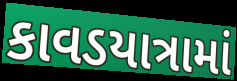
કાવડયાત્રામાં